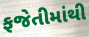
ફજેતીમાંથી